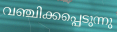
വഞ്ചിക്കപ്പെടുന്നു